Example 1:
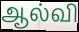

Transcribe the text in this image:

ஆல்வி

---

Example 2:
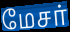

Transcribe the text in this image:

மேசர்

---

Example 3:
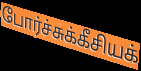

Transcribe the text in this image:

போர்ச்சுக்கீசியக்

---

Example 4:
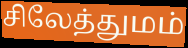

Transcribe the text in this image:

சிலேத்துமம்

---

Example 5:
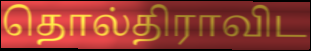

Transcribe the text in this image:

தொல்திராவிட